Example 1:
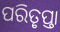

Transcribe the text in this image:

ପରିତୃପ୍ତା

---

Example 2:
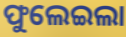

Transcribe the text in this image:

ଫୁଲେଇଲା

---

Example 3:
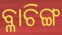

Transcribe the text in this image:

ବ୍ଳାଚିଙ୍ଗ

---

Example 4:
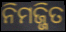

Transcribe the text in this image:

ନିମଜ୍ଜିତ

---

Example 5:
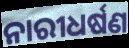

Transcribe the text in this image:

ନାରୀଧର୍ଷଣ